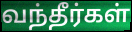
வந்தீர்கள்